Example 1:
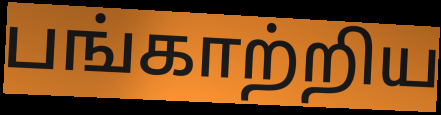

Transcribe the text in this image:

பங்காற்றிய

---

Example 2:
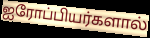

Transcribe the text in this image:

ஐரோப்பியர்களால்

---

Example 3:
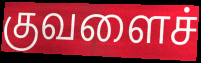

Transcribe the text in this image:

குவளைச்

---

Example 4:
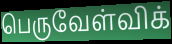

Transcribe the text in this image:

பெருவேள்விக்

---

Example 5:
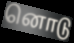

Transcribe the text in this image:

னொடு